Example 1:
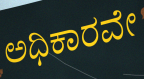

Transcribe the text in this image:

ಅಧಿಕಾರವೇ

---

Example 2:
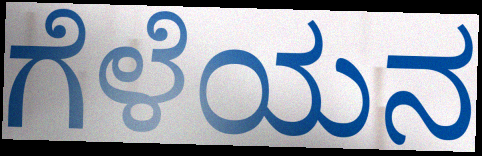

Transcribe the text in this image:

ಗೆಳೆಯನ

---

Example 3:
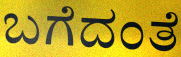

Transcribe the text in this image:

ಬಗೆದಂತೆ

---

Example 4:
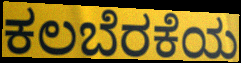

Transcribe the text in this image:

ಕಲಬೆರಕೆಯ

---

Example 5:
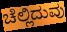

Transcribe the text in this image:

ಚೆಲ್ಲಿದುವು